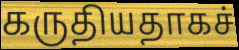
கருதியதாகச்